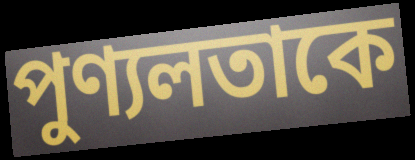
পুণ্যলতাকে